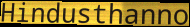
Hindusthanno